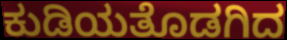
ಕುಡಿಯತೊಡಗಿದ